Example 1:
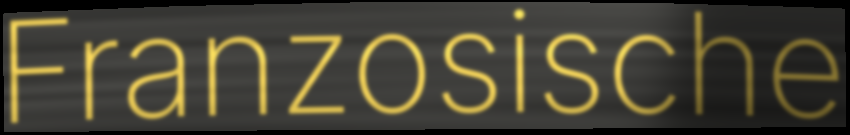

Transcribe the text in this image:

Franzosische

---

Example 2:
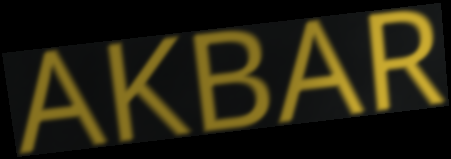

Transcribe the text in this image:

AKBAR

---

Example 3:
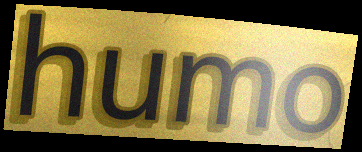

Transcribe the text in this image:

humo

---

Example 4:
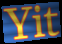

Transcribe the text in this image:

Yit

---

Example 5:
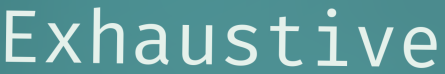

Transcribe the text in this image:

Exhaustive